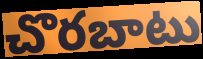
చొరబాటు